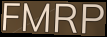
FMRP